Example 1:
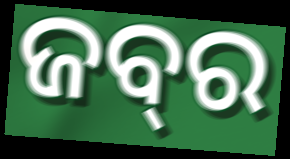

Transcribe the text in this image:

ଜବ୍‍ର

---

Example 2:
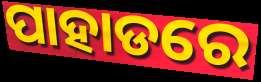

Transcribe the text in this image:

ପାହାଡରେ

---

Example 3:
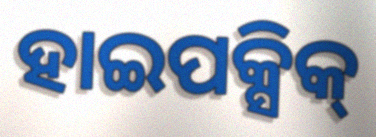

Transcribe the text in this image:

ହାଇପକ୍ସିକ୍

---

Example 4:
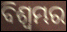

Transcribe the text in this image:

ବିଶ୍ବମ୍ଭର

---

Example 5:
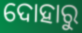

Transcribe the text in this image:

ଦୋହାରୁ